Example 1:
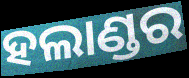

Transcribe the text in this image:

ହଲାଣ୍ଡର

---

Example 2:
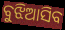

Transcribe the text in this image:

ବୁଝିଆସିବ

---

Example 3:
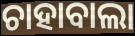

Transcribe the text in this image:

ଚାହାବାଲା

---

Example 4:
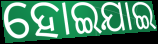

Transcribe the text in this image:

ହୋଇଯାଇ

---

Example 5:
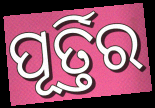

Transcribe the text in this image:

ପୂର୍ତ୍ତିର